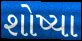
શોષ્યા